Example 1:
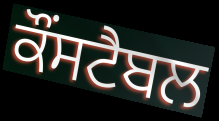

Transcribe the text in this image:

ਕੌਂਸਟੈਬਲ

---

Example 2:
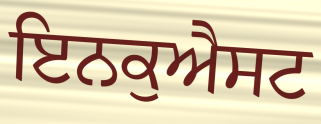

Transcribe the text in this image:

ਇਨਕੁਐਸਟ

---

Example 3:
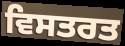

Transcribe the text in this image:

ਵਿਸਤਰਤ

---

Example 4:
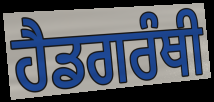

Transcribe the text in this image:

ਹੈਡਗਰੰਥੀ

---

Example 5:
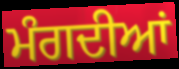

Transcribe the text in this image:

ਮੰਗਦੀਆਂ